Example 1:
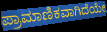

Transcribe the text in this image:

ಪ್ರಾಮಾಣಿಕವಾಗಿದೆಯೇ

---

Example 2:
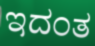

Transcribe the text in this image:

ಇದಂತ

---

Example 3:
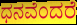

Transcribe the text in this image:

ಧನವೆಂದರೆ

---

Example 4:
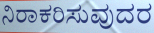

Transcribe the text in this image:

ನಿರಾಕರಿಸುವುದರ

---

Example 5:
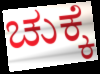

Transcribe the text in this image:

ಚುಕ್ಕೆ